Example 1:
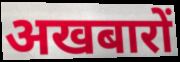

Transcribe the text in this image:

अखबारों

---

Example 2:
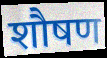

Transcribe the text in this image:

शौषण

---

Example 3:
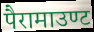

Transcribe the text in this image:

पैरामाउण्ट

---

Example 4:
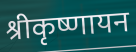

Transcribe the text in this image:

श्रीकृष्णायन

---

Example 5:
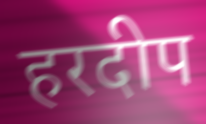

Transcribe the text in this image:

हरदीप